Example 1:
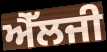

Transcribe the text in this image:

ਐੱਲਜੀ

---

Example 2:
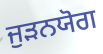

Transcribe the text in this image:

ਜੁੜਨਯੋਗ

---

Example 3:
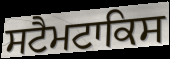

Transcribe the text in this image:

ਸਟੈਮਟਾਕਿਸ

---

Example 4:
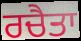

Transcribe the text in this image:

ਰਚੈਤਾ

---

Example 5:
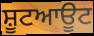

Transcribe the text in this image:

ਸ਼ੂਟਆਊਟ